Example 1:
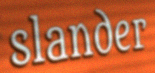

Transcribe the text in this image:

slander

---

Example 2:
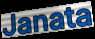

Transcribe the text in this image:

Janata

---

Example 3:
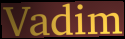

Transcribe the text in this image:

Vadim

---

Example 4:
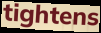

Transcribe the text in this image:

tightens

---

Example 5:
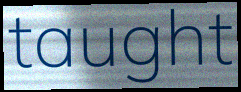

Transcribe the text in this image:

taught